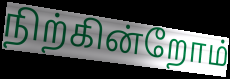
நிற்கின்றோம்